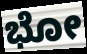
ಭೋ